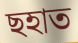
ছহাত